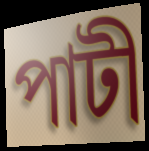
পাটী